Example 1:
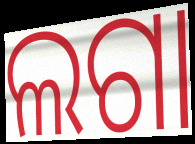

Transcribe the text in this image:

ଲଗା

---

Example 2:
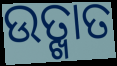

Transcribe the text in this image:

ଉତ୍ଖାତ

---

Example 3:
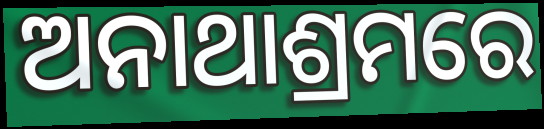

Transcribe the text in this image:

ଅନାଥାଶ୍ରମରେ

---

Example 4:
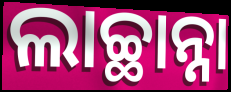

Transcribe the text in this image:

ଲାଚ୍ଛାନ୍ନା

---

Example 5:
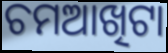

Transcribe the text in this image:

ଚମଆଖିଟା